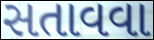
સતાવવા